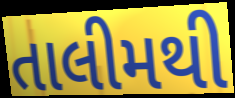
તાલીમથી